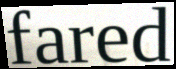
fared